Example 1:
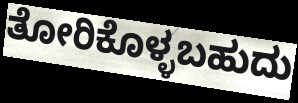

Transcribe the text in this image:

ತೋರಿಕೊಳ್ಳಬಹುದು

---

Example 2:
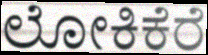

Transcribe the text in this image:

ಲೋಕಿಕೆರೆ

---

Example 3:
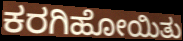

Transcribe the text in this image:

ಕರಗಿಹೋಯಿತು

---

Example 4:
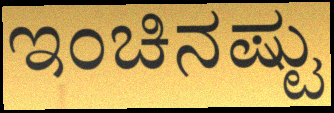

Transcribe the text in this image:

ಇಂಚಿನಷ್ಟು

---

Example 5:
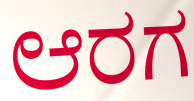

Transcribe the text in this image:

ಆರಗ